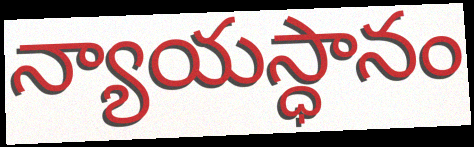
న్యాయస్ధానం